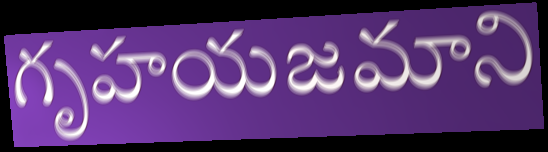
గృహయజమాని